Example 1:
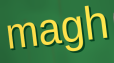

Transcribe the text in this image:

magh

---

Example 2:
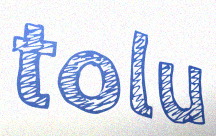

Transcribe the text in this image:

tolu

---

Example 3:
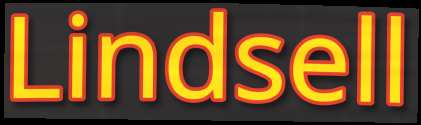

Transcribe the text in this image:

Lindsell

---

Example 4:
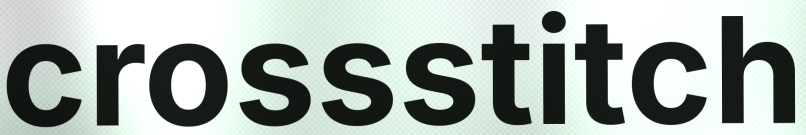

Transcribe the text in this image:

crossstitch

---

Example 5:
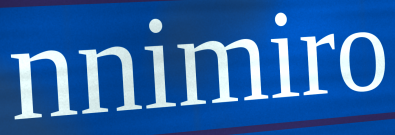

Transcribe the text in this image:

nnimiro